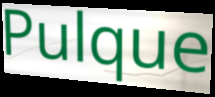
Pulque